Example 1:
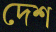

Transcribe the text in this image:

দেশ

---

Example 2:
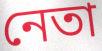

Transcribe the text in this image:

নেতা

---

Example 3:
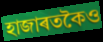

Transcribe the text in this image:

হাজাৰতকৈও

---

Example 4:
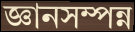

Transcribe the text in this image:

জ্ঞানসম্পন্ন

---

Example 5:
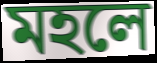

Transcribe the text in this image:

মহলে